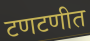
टणटणीत